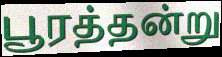
பூரத்தன்று